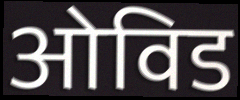
ओविड